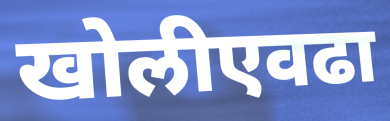
खोलीएवढा